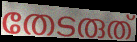
തേടരുത്